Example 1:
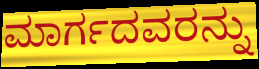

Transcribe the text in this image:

ಮಾರ್ಗದವರನ್ನು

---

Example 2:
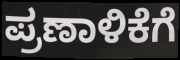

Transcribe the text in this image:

ಪ್ರಣಾಳಿಕೆಗೆ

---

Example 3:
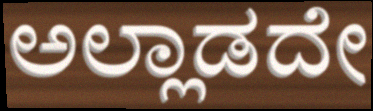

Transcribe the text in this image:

ಅಲ್ಲಾಡದೇ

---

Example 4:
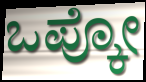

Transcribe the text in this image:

ಒಪ್ಕೋ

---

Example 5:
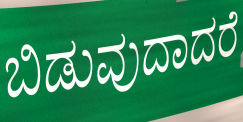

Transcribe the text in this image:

ಬಿಡುವುದಾದರೆ